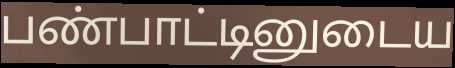
பண்பாட்டினுடைய